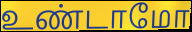
உண்டாமோ